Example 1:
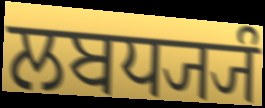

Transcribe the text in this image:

ਲਬਧ੍ਯ੍ਯੰ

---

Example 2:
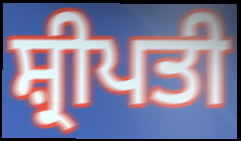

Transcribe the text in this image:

ਸ਼੍ਰੀਪਤੀ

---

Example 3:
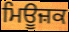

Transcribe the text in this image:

ਮਿਊਜ਼ਕ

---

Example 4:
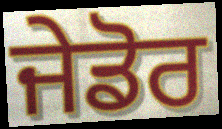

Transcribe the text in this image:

ਜੇਡੋਰ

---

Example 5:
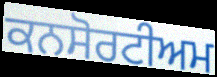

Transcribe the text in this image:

ਕਨਸੋਰਟੀਅਮ